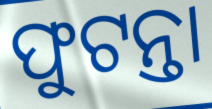
ଫୁଟନ୍ତା